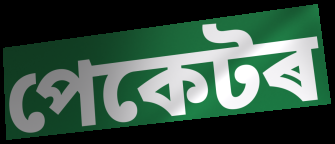
পেকেটৰ